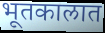
भूतकालात